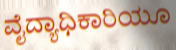
ವೈದ್ಯಾಧಿಕಾರಿಯೂ